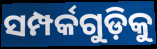
ସମ୍ପର୍କଗୁଡ଼ିକୁ